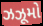
ઝઝૂમો